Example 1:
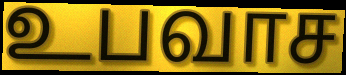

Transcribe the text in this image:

உபவாச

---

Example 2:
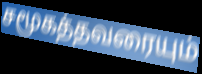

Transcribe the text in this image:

சமூகத்தவரையும்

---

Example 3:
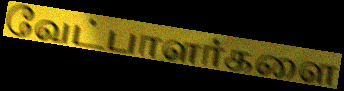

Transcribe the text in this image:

வேட்பாளர்களை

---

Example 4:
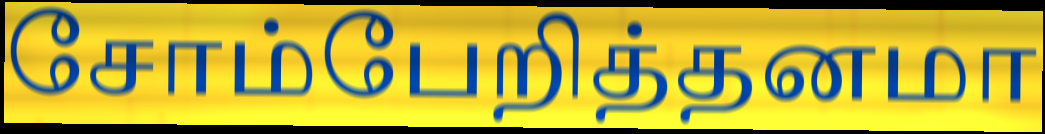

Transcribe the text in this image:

சோம்பேறித்தனமா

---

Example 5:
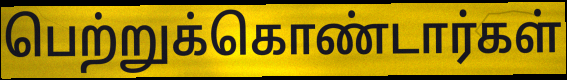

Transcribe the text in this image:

பெற்றுக்கொண்டார்கள்